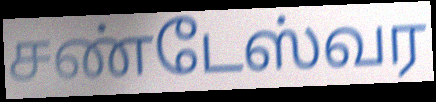
சண்டேஸ்வர